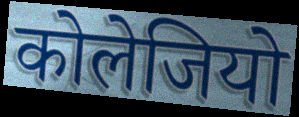
कोलेजियो